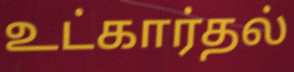
உட்கார்தல்